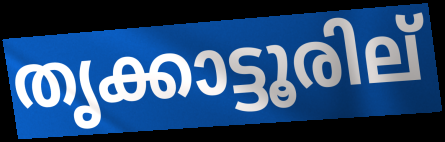
തൃക്കാട്ടൂരില്